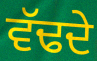
ਵੱਢਦੇ